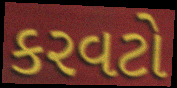
કરવટો